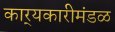
कार्यकारीमंडळ